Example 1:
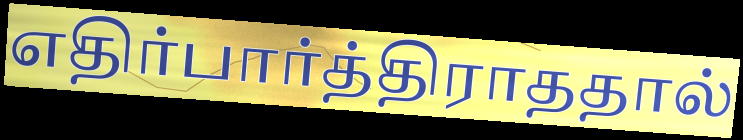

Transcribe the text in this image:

எதிர்பார்த்திராததால்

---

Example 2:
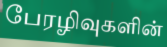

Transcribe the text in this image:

பேரழிவுகளின்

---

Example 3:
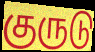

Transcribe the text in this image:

குருடு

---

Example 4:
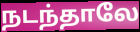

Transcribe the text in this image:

நடந்தாலே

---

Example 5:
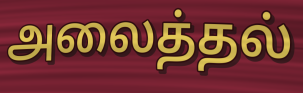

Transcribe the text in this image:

அலைத்தல்